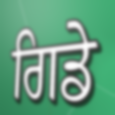
ਗਿਡੇ